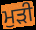
ਮੁੜੀ